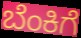
ಬೆಂಕಿಗೆ